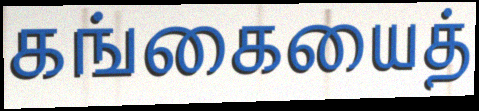
கங்கையைத்